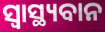
ସ୍ୱାସ୍ଥ୍ୟବାନ